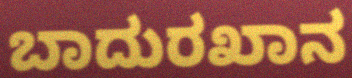
ಬಾದುರಖಾನ